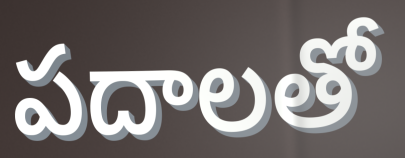
పదాలతో